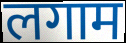
लगाम